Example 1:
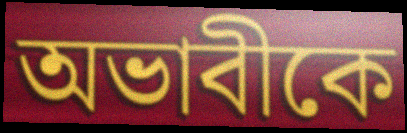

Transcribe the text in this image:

অভাবীকে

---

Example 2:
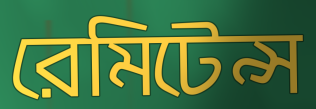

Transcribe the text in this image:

রেমিটেন্স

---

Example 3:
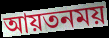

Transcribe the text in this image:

আয়তনময়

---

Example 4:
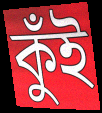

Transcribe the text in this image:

কুঁই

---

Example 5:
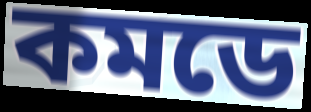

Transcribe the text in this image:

কমডে